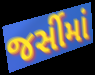
જર્સીમાં